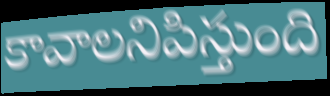
కావాలనిపిస్తుంది